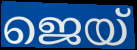
ജെയ്